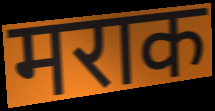
मराक